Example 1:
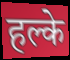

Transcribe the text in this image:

हल्के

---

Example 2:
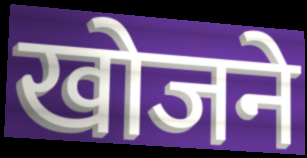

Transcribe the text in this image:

खोजने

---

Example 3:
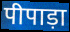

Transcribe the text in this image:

पीपाड़ा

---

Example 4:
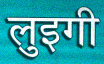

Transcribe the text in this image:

लुइगी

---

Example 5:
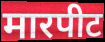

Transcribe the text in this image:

मारपीट